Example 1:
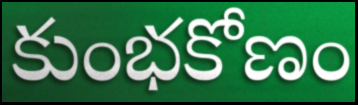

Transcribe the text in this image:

కుంభకోణం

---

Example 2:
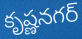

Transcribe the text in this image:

కృష్ణనగర్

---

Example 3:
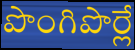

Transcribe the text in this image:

పొంగిపొర్లే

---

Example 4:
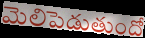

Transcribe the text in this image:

మెలిపెడుతుందో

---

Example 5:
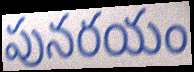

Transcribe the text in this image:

పునరయం